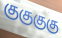
குகுகுகு